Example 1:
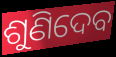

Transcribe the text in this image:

ଶୁଣିଦେବ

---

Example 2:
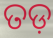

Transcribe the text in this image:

ତଡ଼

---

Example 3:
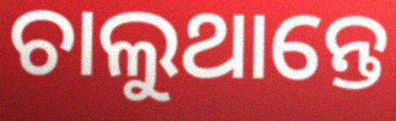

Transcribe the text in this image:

ଚାଲୁଥାନ୍ତେ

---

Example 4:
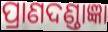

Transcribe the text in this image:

ପ୍ରାଣଦଣ୍ଡାଜ୍ଞା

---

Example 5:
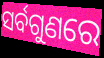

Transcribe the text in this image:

ସର୍ବଗୁଣରେ